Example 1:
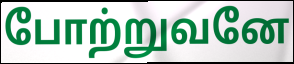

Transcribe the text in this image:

போற்றுவனே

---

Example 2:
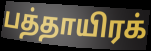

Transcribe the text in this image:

பத்தாயிரக்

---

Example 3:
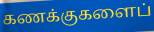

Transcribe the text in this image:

கணக்குகளைப்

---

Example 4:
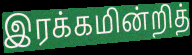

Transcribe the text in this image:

இரக்கமின்றித்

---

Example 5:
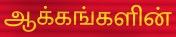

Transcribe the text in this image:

ஆக்கங்களின்